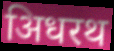
अिधरथ